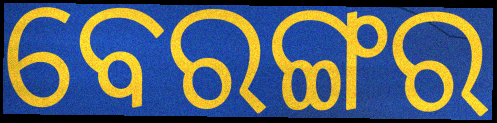
ବେରଙ୍ଗର